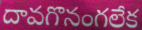
దావగొనంగలేక